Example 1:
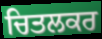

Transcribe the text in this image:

ਚਿਤਲਕਰ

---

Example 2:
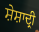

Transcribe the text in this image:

ਸ਼ੇਸ਼ਾਦ੍ਰੀ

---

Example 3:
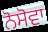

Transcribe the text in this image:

ਨੋਸੋਵਾ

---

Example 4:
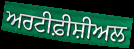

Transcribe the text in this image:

ਅਰਟੀਫ਼ੀਸ਼ੀਅਲ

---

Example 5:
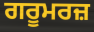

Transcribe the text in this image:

ਗਰੂਮਰਜ਼